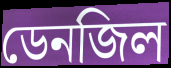
ডেনজিল